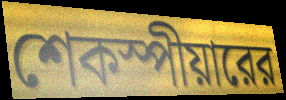
শেকস্পীয়ারের